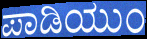
ಪಾಡಿಯುಂ